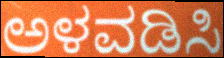
ಅಳವಡಿಸಿ